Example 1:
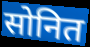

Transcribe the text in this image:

सोनित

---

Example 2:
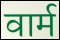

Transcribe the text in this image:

वार्म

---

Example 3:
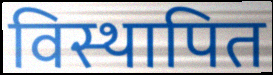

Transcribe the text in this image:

विस्थापित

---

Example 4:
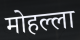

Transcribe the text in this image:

मोहल्ला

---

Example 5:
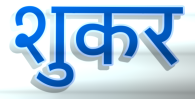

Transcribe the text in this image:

शुकर